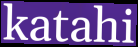
katahi